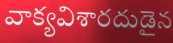
వాక్యవిశారదుడైన